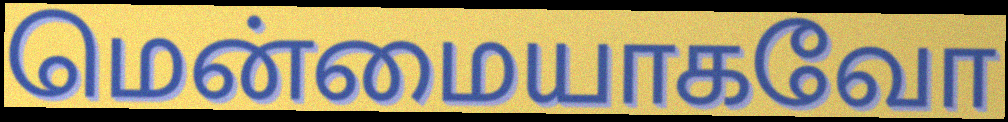
மென்மையாகவோ